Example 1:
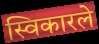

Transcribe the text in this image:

स्विकारले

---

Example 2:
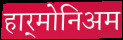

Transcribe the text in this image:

हार्मोनिअम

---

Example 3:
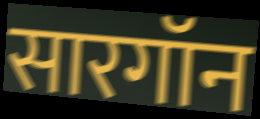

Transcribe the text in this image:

सारगॉन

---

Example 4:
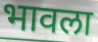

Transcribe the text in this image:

भावला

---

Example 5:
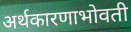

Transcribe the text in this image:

अर्थकारणाभोवती